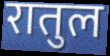
रातुल